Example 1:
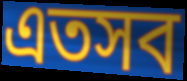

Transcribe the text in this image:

এতসব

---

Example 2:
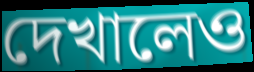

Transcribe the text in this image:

দেখালেও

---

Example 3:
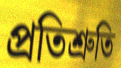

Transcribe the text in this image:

প্রতিশ্রুতি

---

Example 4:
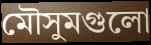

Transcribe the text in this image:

মৌসুমগুলো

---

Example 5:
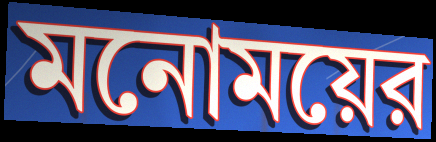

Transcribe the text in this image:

মনোময়ের